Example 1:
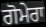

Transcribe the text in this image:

ਗੋਮੇਰਾ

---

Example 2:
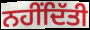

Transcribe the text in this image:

ਨਹੀਂਦਿੱਤੀ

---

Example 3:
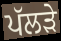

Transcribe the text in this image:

ਪੱਲੜੇ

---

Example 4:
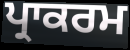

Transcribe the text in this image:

ਪ੍ਰਾਕਰਮ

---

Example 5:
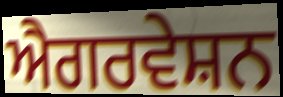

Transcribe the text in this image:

ਐਗਰਵੇਸ਼ਨ